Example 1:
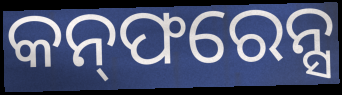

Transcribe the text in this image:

କନ୍‌ଫରେନ୍ସ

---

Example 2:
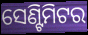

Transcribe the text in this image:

ସେଣ୍ଟିମିଟର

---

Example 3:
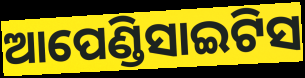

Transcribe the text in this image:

ଆପେଣ୍ଡିସାଇଟିସ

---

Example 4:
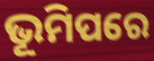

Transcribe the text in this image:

ଭୂମିପରେ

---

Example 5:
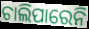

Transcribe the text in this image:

ଚାଲିପାରେନି